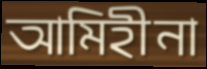
আমিহীনা